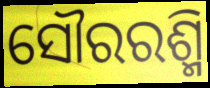
ସୌରରଶ୍ମି